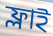
ফ্লাই